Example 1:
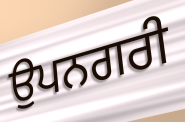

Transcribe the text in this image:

ਉਪਨਗਰੀ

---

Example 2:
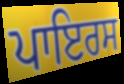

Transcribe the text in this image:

ਪਾਇਰਸ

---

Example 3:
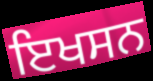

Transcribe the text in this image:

ਇਖਸਨ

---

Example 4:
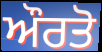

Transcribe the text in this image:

ਔਰਤੋ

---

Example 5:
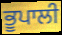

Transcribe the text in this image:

ਭੂਪਾਲੀ